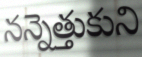
నన్నెత్తుకుని